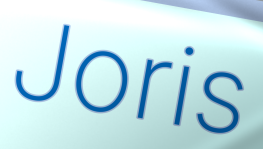
Joris